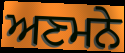
ਅਣਮਨੇ